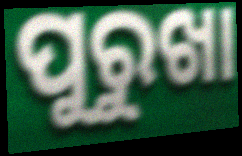
ପୁରୁଖା